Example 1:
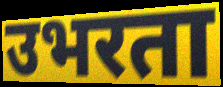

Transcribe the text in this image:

उभरता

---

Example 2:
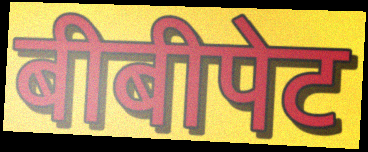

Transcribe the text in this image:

बीबीपेट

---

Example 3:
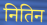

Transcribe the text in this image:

नितिन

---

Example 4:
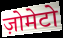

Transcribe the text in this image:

ज़ोमेटो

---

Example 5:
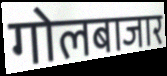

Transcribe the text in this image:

गोलबाजार